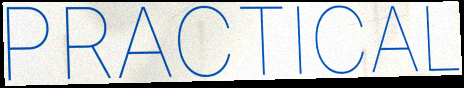
PRACTICAL